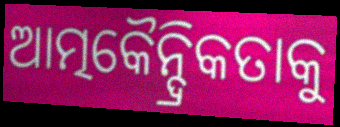
ଆତ୍ମକୈନ୍ଦ୍ରିକତାକୁ